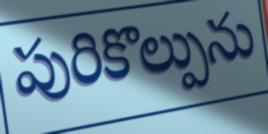
పురికొల్పును